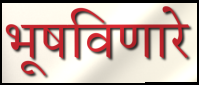
भूषविणारे